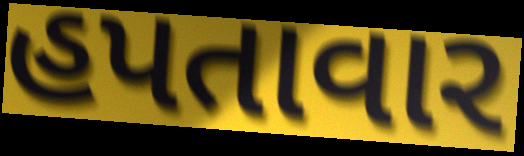
હપતાવાર